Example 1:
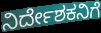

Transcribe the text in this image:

ನಿರ್ದೇಶಕನಿಗೆ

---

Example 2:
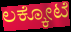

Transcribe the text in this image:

ಲಕ್ಕೋಟೆ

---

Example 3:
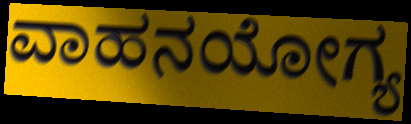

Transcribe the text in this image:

ವಾಹನಯೋಗ್ಯ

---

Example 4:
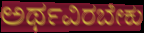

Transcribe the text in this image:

ಅರ್ಥವಿರಬೇಕು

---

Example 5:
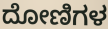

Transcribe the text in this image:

ದೋಣಿಗಳ